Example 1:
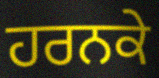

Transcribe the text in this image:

ਹਰਨਕੇ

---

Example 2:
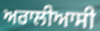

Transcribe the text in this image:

ਅਰਾਲੀਆਸੀ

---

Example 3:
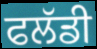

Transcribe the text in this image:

ਫਲੱਡੀ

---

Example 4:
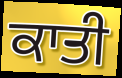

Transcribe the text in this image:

ਕਾਤੀ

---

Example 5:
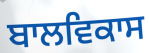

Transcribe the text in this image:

ਬਾਲਵਿਕਾਸ